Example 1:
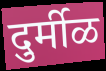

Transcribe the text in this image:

दुर्मीळ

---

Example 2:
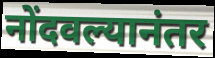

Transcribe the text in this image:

नोंदवल्यानंतर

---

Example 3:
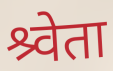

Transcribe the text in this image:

श्र्वेता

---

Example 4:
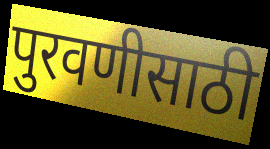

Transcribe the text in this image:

पुरवणीसाठी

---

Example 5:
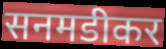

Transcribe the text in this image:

सनमडीकर